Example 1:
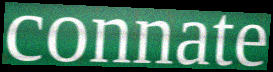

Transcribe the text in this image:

connate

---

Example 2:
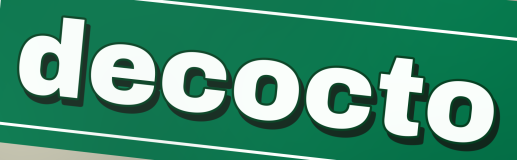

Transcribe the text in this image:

decocto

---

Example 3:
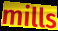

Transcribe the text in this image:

mills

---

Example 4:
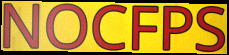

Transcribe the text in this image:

NOCFPS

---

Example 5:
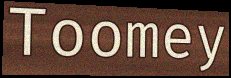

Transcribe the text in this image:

Toomey